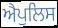
ਐਪੁਲਿਸ